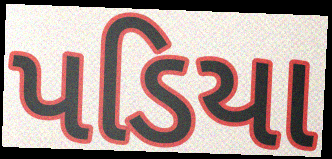
પડિયા